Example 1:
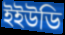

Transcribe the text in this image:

ইইউডি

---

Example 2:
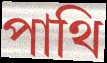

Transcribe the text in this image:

পাথি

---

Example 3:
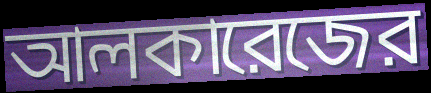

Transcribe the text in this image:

আলকারেজের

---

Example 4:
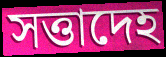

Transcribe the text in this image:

সত্তাদেহ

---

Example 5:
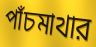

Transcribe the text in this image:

পাঁচমাথার